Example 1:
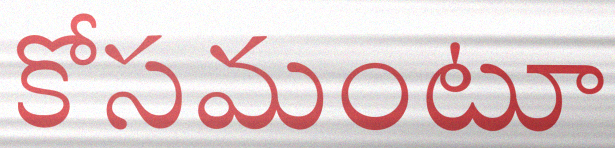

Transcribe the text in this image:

కోసమంటూ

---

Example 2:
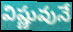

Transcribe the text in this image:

విష్ణువునే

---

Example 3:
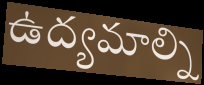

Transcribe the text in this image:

ఉద్యమాల్ని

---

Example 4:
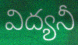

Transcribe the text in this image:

విద్యనీ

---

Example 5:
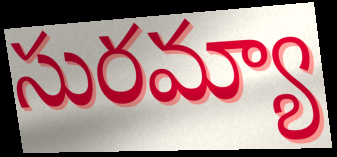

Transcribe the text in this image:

సురమ్యా